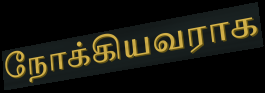
நோக்கியவராக